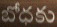
బోధకు